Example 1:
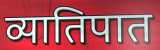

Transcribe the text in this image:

व्यातिपात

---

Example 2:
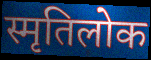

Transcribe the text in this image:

स्मृतिलोक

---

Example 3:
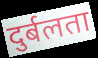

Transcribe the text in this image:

दुर्बलता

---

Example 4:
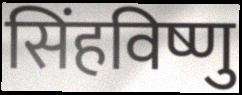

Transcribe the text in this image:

सिंहविष्णु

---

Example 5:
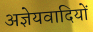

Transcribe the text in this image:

अज्ञेयवादियों